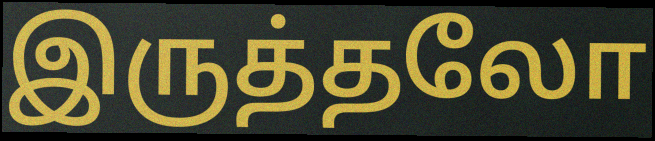
இருத்தலோ